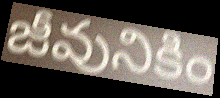
జీవునికిం